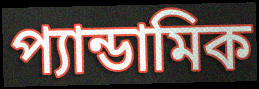
প্যান্ডামিক